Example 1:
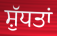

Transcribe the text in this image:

ਸ਼ੁੱਧਤਾਂ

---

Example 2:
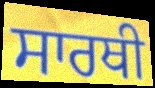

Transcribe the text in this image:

ਸਾਰਥੀ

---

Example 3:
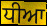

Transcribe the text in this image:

ਧੀਆ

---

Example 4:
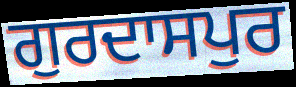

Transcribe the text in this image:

ਗੁਰਦਾਸਪੁਰ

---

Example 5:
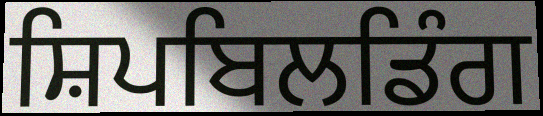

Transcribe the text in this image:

ਸ਼ਿਪਬਿਲਡਿੰਗ